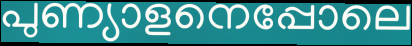
പുണ്യാളനെപ്പോലെ